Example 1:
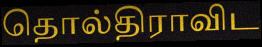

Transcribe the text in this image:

தொல்திராவிட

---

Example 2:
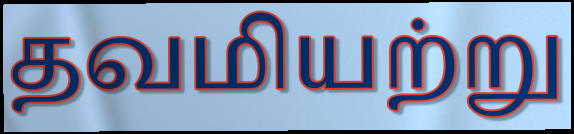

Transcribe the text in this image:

தவமியற்று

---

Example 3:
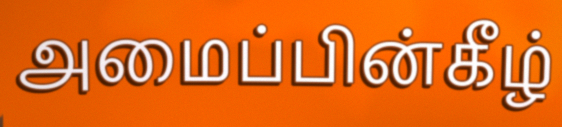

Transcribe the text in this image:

அமைப்பின்கீழ்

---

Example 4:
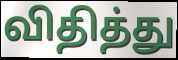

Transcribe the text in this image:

விதித்து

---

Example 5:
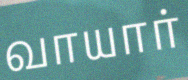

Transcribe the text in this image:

வாயார்